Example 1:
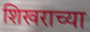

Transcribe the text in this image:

शिखराच्या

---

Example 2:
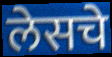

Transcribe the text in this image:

लेसचे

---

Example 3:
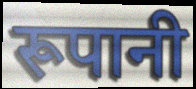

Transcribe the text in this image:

रूपानी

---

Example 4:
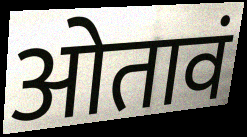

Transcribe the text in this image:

ओतावं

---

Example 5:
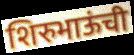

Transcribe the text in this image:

शिरुभाऊंची